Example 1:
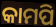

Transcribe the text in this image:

କାମପି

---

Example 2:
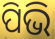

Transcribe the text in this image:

ପିଭି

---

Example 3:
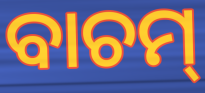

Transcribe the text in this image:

ବାଚମ୍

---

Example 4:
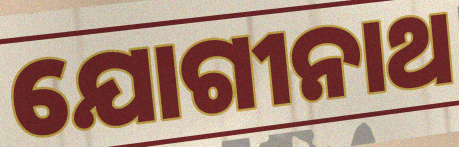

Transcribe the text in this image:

ଯୋଗୀନାଥ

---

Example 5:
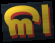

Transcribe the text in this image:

ଳା